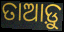
ତାଆଡ଼ୁ